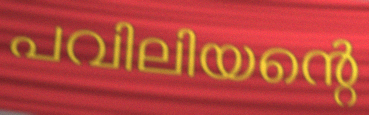
പവിലിയന്റെ